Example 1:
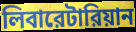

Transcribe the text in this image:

লিবারেটারিয়ান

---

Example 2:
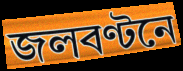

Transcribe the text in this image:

জলবণ্টনে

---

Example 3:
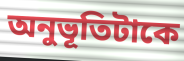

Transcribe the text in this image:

অনুভূতিটাকে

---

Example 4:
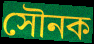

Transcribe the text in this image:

সৌনক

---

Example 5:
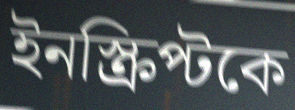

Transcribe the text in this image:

ইনস্ক্রিপ্টকে